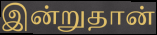
இன்றுதான்